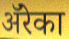
ॲरेका